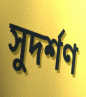
সুদর্শণ